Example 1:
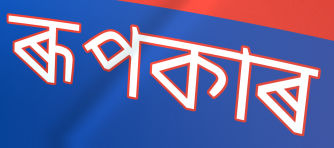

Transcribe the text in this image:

ৰূপকাৰ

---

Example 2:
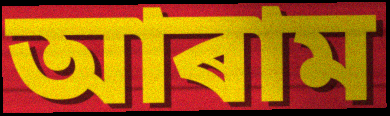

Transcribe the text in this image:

আৰাম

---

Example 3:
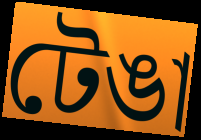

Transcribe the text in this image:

টেঙা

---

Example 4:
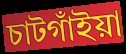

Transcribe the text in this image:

চাটগাঁইয়া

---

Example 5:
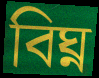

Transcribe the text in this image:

বিঘ্ন